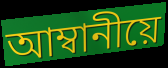
আম্বানীয়ে